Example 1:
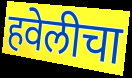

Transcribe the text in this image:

हवेलीचा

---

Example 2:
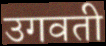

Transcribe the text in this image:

उगवती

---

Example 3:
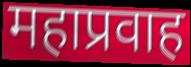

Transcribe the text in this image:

महाप्रवाह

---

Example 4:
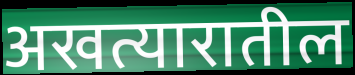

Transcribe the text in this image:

अखत्यारातील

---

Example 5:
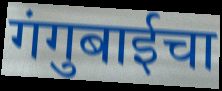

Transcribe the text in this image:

गंगुबाईचा